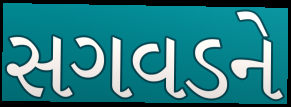
સગવડને